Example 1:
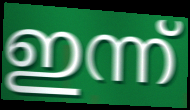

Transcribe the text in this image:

ഇന്ന്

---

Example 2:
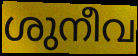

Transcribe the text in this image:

ശുനീവ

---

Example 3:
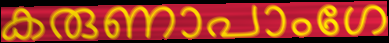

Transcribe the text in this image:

കരുണാപാംഗേ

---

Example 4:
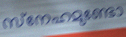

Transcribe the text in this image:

സ്‌നേഹമുണ്ടോ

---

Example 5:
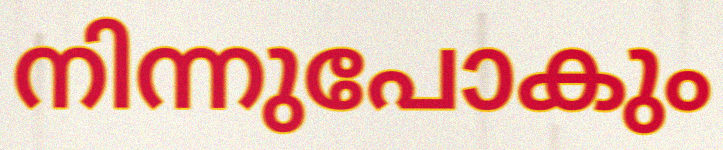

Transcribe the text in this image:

നിന്നുപോകും